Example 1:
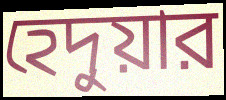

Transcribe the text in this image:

হেদুয়ার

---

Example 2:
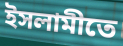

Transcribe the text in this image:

ইসলামীতে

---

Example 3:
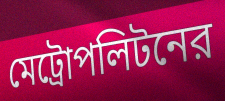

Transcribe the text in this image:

মেট্রোপলিটনের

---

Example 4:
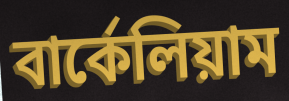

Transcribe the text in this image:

বার্কেলিয়াম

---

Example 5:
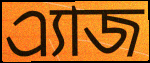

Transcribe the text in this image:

এ্যাজ